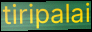
tiripalai